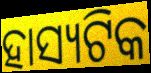
ହାସ୍ୟଟିକ